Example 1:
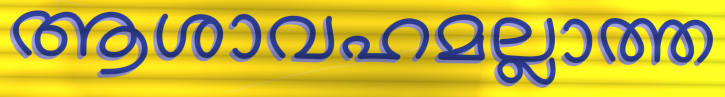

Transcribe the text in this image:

ആശാവഹമല്ലാത്ത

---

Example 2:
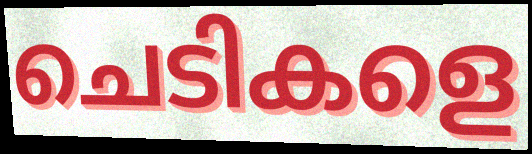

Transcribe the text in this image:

ചെടികളെ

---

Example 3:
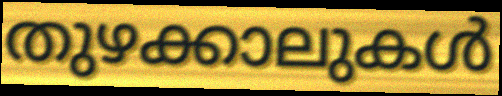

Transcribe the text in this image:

തുഴക്കാലുകൾ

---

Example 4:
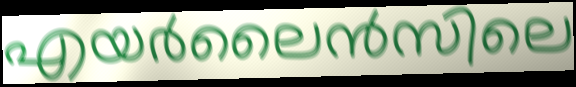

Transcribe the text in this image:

എയർലൈൻസിലെ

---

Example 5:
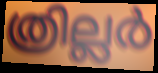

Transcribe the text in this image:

ത്രില്ലർ